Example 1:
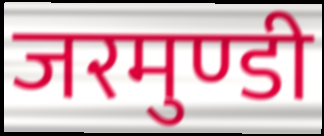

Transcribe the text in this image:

जरमुण्डी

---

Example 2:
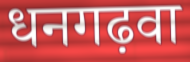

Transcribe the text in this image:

धनगढ़वा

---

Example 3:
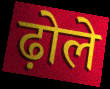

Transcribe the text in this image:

ढ़ोले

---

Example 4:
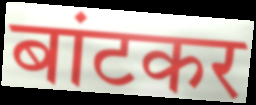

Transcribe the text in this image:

बांटकर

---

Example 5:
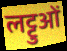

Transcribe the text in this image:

लट्टुओं